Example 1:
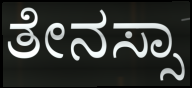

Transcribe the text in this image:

ತೇನಸ್ಸಾ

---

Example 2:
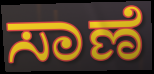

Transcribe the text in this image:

ಸಾಣೆ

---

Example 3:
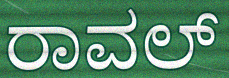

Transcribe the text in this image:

ರಾವಲ್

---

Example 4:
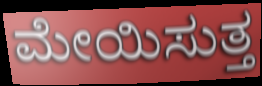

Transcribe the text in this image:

ಮೇಯಿಸುತ್ತ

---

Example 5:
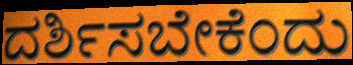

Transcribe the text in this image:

ದರ್ಶಿಸಬೇಕೆಂದು